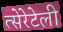
त्सेरेटेली